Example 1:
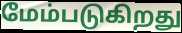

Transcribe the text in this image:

மேம்படுகிறது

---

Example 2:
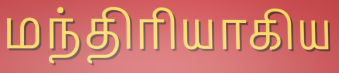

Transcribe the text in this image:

மந்திரியாகிய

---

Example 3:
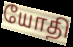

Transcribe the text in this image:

யோதி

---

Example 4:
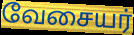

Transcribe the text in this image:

வேசையர்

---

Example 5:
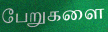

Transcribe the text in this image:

பேறுகளை